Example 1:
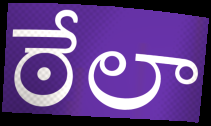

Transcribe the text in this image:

ఠేలా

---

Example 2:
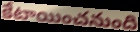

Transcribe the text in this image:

కేటాయించనుంది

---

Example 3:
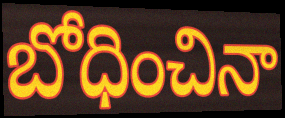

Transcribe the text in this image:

బోధించినా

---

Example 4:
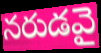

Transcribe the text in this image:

నరుడవై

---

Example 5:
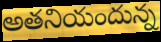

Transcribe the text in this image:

అతనియందున్న